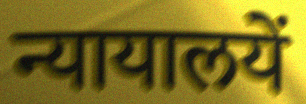
न्यायालयें